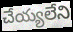
చేయ్యలేని